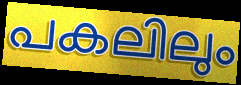
പകലിലും